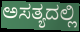
ಅಸತ್ಯದಲ್ಲಿ